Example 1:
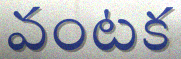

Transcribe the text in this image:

వంటక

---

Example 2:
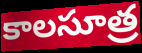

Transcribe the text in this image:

కాలసూత్ర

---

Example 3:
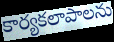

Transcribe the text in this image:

కార్యకలాపాలను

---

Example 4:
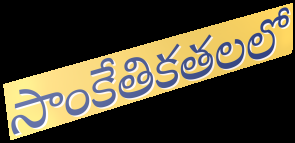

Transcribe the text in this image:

సాంకేతికతలలో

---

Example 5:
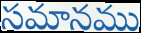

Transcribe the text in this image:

సమానము